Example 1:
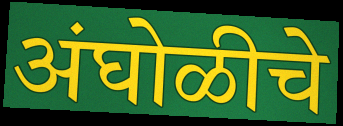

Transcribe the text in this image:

अंघोळीचे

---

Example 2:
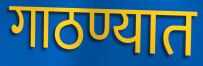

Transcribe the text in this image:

गाठण्यात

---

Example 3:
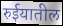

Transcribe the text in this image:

रुईयातील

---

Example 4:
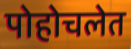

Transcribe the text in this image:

पोहोचलेत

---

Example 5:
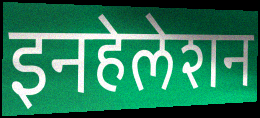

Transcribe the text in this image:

इनहेलेशन